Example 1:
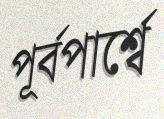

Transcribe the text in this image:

পূর্বপার্শ্বে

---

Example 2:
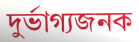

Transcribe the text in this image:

দুর্ভাগ্যজনক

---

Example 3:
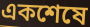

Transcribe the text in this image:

একশেষে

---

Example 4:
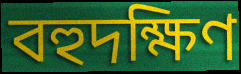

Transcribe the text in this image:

বহুদক্ষিণ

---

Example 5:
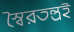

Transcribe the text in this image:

স্বৈরতন্ত্রই